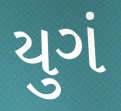
યુગં